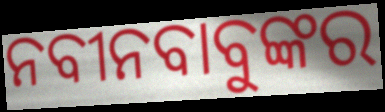
ନବୀନବାବୁଙ୍କର